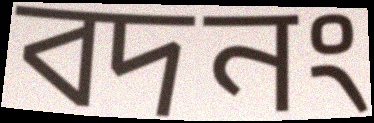
বদনং